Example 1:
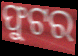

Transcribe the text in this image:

ଫୁଟର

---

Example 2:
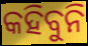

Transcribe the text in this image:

କହିବୁନି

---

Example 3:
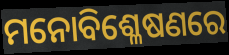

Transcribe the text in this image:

ମନୋବିଶ୍ଳେଷଣରେ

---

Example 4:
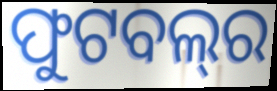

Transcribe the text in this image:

ଫୁଟବଲ୍‍ର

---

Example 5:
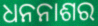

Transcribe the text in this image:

ଧନନାଶର